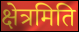
क्षेत्रमिति